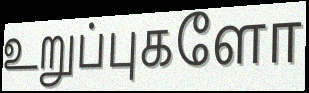
உறுப்புகளோ